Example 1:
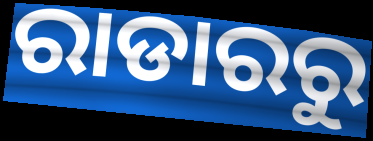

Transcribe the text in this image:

ରାଡାରରୁ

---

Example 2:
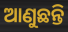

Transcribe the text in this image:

ଆଣୁଛନ୍ତି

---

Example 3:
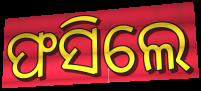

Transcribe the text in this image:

ଫସିଲେ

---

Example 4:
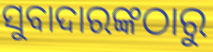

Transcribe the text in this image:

ସୁବାଦାରଙ୍କଠାରୁ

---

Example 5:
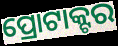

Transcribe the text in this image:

ପ୍ରୋଟାକ୍ଟର